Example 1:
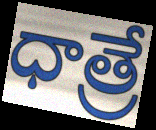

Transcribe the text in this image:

ధాత్రే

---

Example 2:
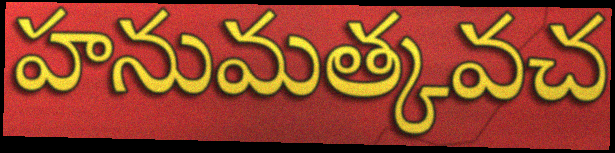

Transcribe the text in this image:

హనుమత్కవచ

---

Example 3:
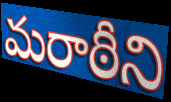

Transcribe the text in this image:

మరాఠీని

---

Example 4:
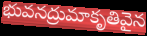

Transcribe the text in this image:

భువనద్రుమాకృతివైన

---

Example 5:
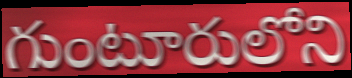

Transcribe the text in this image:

గుంటూరులోని